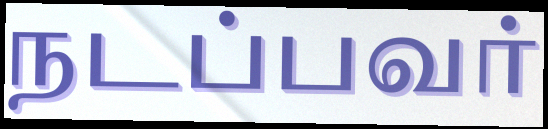
நடப்பவர்